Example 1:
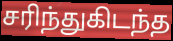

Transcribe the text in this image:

சரிந்துகிடந்த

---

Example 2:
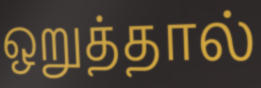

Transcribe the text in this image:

ஒறுத்தால்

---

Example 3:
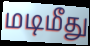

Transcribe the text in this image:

மடிமீது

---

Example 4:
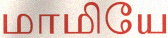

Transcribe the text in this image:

மாமியே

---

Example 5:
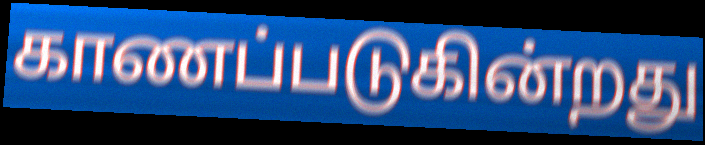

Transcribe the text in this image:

காணப்படுகின்றது